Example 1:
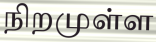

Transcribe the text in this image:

நிறமுள்ள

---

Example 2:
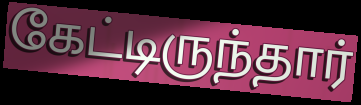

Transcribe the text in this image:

கேட்டிருந்தார்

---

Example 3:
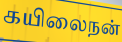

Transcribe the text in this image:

கயிலைநன்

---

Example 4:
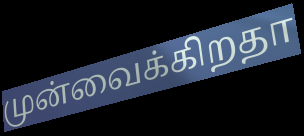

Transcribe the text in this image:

முன்வைக்கிறதா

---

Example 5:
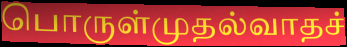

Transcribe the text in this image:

பொருள்முதல்வாதச்